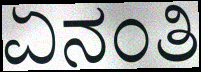
ಏನಂತಿ